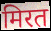
मिरत